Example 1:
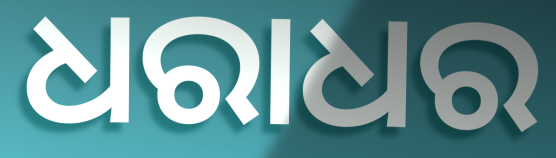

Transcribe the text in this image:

ଧରାଧର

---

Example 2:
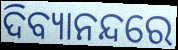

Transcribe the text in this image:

ଦିବ୍ୟାନନ୍ଦରେ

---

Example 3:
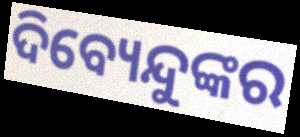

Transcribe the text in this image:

ଦିବ୍ୟେନ୍ଦୁଙ୍କର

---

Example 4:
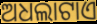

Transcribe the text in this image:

ଅଧଲାଟାଏ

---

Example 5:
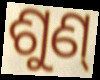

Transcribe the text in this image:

ଶୁଣ୍